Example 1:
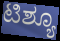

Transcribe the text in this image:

ಟಿಶ್ಯೂ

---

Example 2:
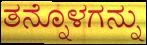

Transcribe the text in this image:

ತನ್ನೊಳಗನ್ನು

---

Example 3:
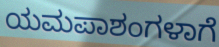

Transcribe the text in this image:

ಯಮಪಾಶಂಗಳಾಗೆ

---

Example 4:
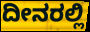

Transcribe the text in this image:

ದೀನರಲ್ಲಿ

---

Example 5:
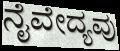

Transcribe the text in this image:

ನೈವೇದ್ಯವು